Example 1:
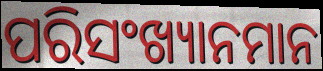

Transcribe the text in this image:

ପରିସଂଖ୍ୟାନମାନ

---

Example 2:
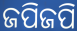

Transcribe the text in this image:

ଜପିଜପି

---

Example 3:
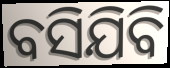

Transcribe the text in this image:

ବସିଯିବି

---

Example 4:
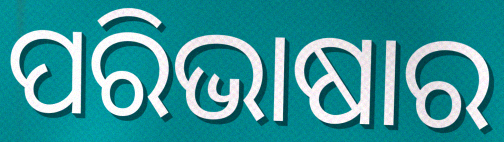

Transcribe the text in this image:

ପରିଭାଷାର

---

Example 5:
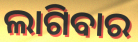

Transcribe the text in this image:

ଲାଗିବାର